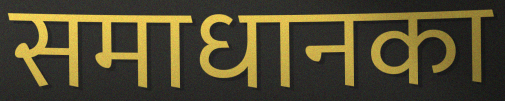
समाधानका